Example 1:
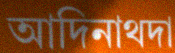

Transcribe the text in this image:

আদিনাথদা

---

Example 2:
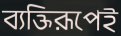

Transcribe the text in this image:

ব্যক্তিরূপেই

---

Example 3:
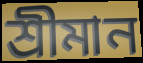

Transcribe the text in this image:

শ্রীমান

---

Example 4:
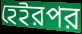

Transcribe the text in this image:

হেইরপর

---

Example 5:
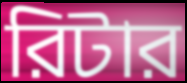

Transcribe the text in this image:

রিটার